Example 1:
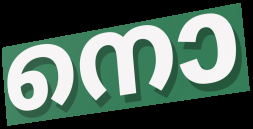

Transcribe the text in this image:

നൊ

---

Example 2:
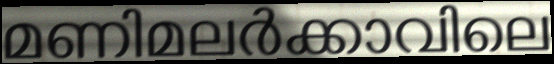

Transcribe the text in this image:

മണിമലർക്കാവിലെ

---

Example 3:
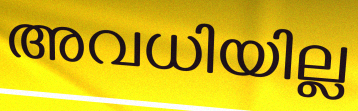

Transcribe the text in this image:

അവധിയില്ല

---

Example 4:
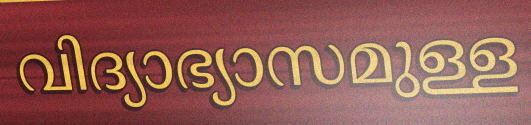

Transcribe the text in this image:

വിദ്യാഭ്യാസമുള്ള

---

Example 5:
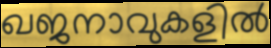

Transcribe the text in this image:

ഖജനാവുകളിൽ